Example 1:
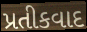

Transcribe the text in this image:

પ્રતીકવાદ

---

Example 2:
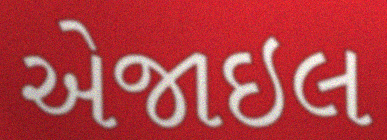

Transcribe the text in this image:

એજાઇલ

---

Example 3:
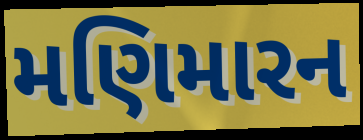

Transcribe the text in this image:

મણિમારન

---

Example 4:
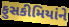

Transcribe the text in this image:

ફુસકીમિયાંને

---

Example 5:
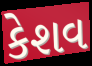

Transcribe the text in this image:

કેશવ